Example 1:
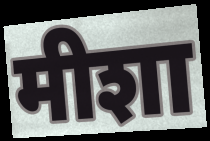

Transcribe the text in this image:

मीशा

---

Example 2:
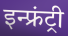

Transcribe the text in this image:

इन्फ्रंट्री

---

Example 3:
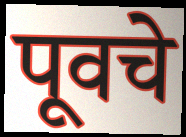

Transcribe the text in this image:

पूवचे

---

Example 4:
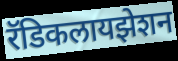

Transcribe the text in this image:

रॅडिकलायझेशन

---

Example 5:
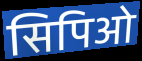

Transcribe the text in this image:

सिपिओ